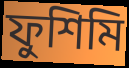
ফুশিমি